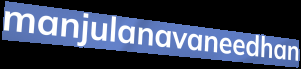
manjulanavaneedhan